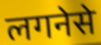
लगनेसे